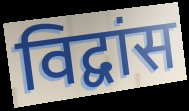
विद्वांस